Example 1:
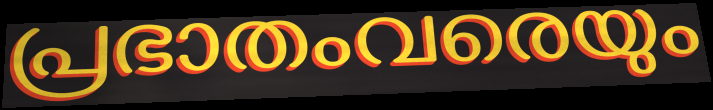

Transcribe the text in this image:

പ്രഭാതംവരെയും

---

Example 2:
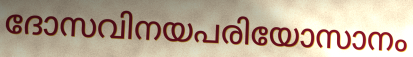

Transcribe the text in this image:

ദോസവിനയപരിയോസാനം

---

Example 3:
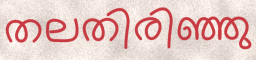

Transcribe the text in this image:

തലതിരിഞ്ഞു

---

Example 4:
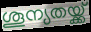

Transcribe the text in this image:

ശൂന്യതയ്ക്ക്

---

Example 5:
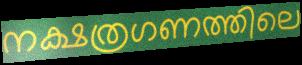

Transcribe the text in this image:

നക്ഷത്രഗണത്തിലെ